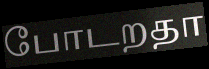
போடறதா